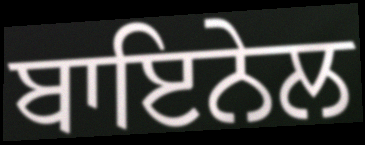
ਬਾਇਨੇਲ